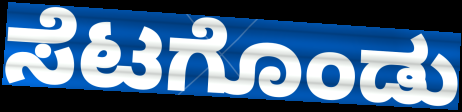
ಸೆಟಗೊಂಡು